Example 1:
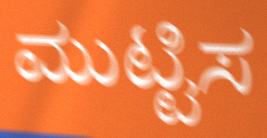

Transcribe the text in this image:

ಮುಟ್ಟಿಸ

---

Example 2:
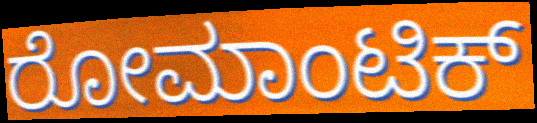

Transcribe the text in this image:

ರೋಮಾಂಟಿಕ್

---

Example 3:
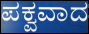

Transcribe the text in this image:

ಪಕ್ವವಾದ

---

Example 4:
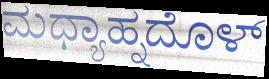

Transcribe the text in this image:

ಮಧ್ಯಾಹ್ನದೊಳ್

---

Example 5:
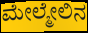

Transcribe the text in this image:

ಮೇಲ್ಮೇಲಿನ